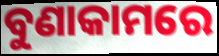
ବୁଣାକାମରେ